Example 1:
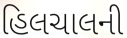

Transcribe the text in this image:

હિલચાલની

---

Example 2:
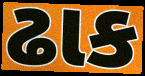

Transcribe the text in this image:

ઢાક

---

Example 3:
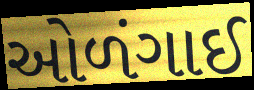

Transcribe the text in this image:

ઓળંગાઈ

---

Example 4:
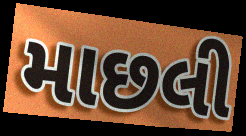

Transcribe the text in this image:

માછલી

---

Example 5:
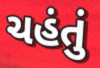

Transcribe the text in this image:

ચહંતું